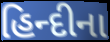
હિન્દીના